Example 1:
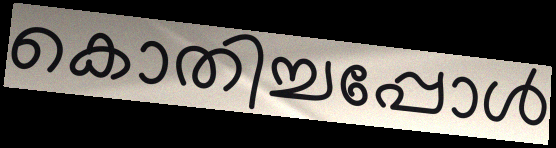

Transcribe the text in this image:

കൊതിച്ചപ്പോൾ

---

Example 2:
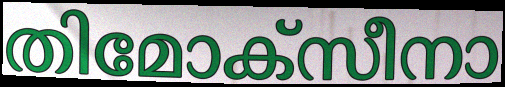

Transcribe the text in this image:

തിമോക്സീനാ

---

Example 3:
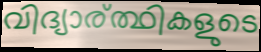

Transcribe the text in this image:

വിദ്യാര്ത്ഥികളുടെ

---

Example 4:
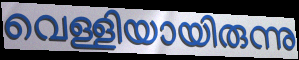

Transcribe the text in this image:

വെള്ളിയായിരുന്നു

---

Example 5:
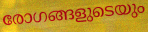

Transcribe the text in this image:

രോഗങ്ങളുടെയും